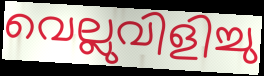
വെല്ലുവിളിച്ചു